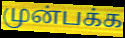
முன்பக்க